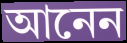
আনেন